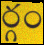
ర్గం